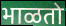
भाळतो